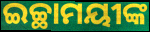
ଇଚ୍ଛାମୟୀଙ୍କ